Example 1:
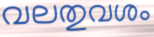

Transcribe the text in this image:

വലതുവശം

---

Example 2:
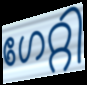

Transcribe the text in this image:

ഗേറ്റി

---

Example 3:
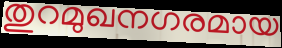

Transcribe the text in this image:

തുറമുഖനഗരമായ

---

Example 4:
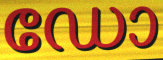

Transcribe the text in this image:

ഡോ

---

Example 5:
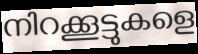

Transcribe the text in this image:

നിറക്കൂട്ടുകളെ